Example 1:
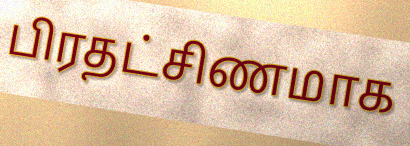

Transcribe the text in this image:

பிரதட்சிணமாக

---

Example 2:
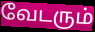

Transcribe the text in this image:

வேடரும்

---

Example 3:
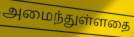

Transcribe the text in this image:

அமைந்துள்ளதை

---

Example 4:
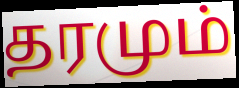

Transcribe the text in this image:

தரமும்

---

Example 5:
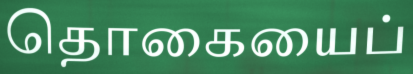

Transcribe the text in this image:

தொகையைப்